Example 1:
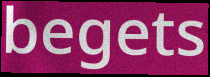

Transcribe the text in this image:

begets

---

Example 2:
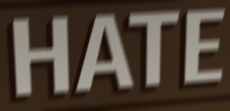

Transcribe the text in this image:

HATE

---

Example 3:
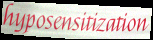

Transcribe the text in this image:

hyposensitization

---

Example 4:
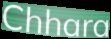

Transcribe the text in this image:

Chhara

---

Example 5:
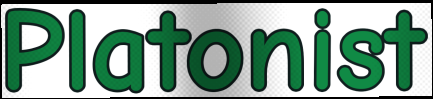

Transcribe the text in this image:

Platonist